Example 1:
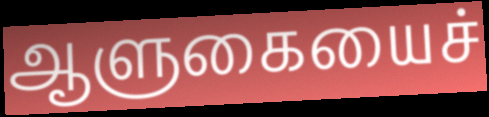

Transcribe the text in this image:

ஆளுகையைச்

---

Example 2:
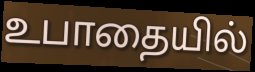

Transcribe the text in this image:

உபாதையில்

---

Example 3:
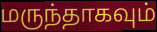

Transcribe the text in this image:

மருந்தாகவும்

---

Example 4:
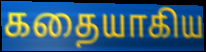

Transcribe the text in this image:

கதையாகிய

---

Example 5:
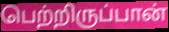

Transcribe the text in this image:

பெற்றிருப்பான்